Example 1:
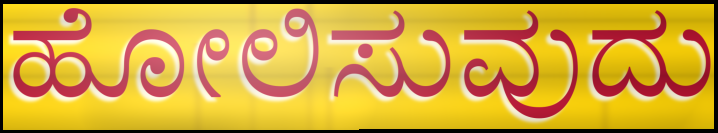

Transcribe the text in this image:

ಹೋಲಿಸುವುದು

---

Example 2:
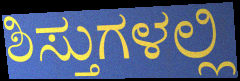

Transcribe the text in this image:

ಶಿಸ್ತುಗಳಲ್ಲಿ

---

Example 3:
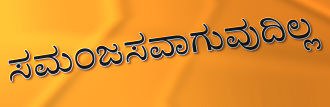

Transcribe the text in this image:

ಸಮಂಜಸವಾಗುವುದಿಲ್ಲ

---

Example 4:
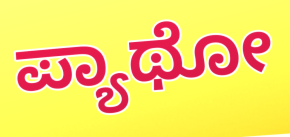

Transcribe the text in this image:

ಪ್ಯಾಥೋ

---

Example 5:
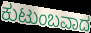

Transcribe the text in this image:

ಕುಟುಂಬವಾದ